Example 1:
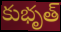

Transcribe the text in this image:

కుభృత్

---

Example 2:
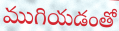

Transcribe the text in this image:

ముగియడంతో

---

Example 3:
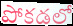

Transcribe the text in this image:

పోకడలో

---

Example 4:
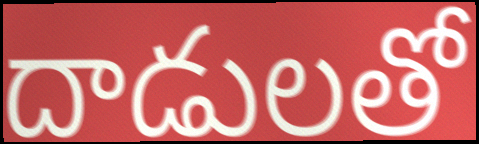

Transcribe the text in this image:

దాడులతో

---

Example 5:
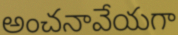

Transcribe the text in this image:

అంచనావేయగా